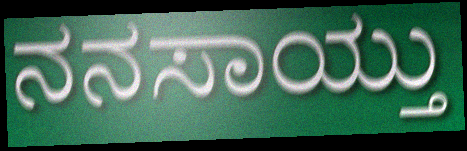
ನನಸಾಯ್ತು